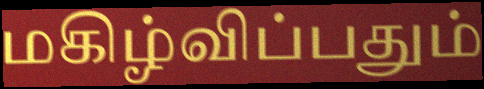
மகிழ்விப்பதும்